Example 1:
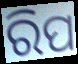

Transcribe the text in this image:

ରିପ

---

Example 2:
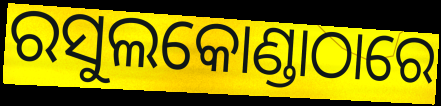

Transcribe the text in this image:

ରସୁଲକୋଣ୍ଡାଠାରେ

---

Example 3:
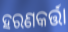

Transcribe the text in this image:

ହରଣକର୍ତ୍ତା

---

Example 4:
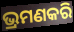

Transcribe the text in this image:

ଭ୍ରମଣକରି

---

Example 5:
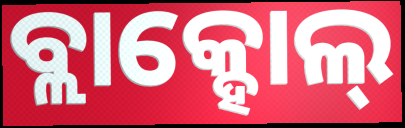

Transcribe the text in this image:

ବ୍ଲାକ୍ହୋଲ୍